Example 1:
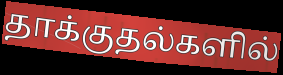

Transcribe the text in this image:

தாக்குதல்களில்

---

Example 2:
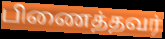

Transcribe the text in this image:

பிணைத்தவர்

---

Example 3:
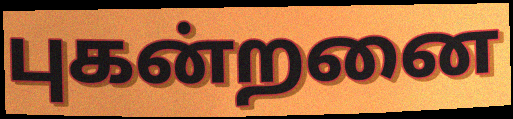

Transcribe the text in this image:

புகன்றனை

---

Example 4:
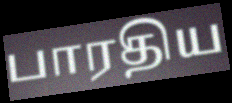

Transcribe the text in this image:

பாரதிய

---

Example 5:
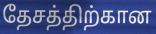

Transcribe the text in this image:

தேசத்திற்கான